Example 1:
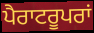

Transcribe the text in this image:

ਪੈਰਾਟਰੂਪਰਾਂ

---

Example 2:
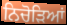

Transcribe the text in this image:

ਨਿਚੋੜਿਆਂ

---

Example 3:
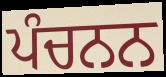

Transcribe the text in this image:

ਪੰਚਨਨ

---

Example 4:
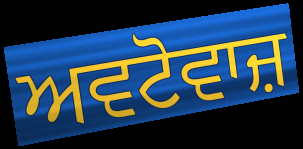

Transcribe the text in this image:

ਅਵਟੋਵਾਜ਼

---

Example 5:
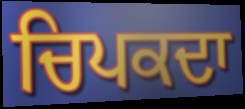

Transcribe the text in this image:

ਚਿਪਕਦਾ